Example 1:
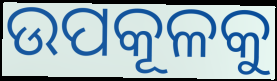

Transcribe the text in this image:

ଉପକୂଳକୁ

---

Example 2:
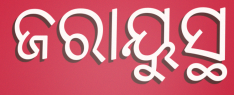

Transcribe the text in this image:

ଜରାୟୁସ୍ଥ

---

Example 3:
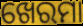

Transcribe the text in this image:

ଖେରମା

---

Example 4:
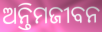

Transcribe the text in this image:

ଅନ୍ତିମଜୀବନ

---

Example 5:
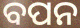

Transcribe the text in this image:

ବପନ